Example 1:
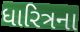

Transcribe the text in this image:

ધારિત્રના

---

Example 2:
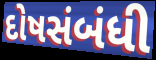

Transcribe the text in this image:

દોષસંબંધી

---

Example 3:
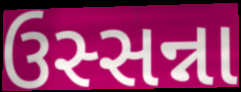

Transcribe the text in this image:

ઉસ્સન્ના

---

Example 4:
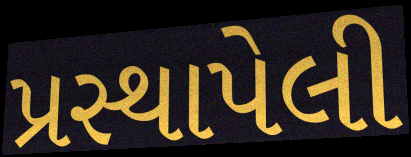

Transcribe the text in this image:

પ્રસ્થાપેલી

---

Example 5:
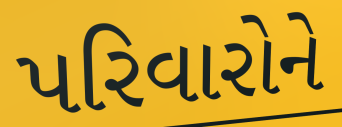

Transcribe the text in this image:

પરિવારોને